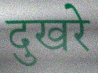
दुखरे